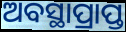
ଅବସ୍ଥାପ୍ରାପ୍ତ